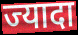
ज्यादा